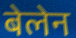
बेलेन